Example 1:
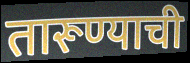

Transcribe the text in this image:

तारूण्याची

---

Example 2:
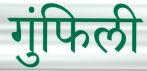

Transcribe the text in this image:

गुंफिली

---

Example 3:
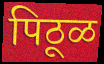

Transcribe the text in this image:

पिठूळ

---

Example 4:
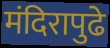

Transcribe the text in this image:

मंदिरापुढे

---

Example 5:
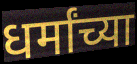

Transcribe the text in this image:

धर्मांच्या